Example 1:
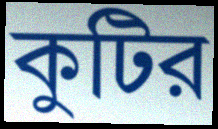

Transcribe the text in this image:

কুটির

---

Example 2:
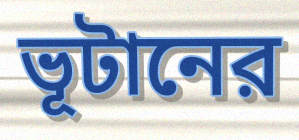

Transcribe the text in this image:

ভূটানের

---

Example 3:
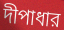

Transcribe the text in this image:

দীপাধার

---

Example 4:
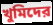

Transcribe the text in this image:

খুমিদের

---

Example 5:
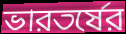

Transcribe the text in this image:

ভারতর্ষের